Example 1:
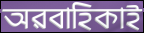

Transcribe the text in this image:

অৱবাহিকাই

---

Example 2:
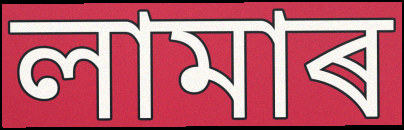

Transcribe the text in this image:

লামাৰ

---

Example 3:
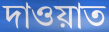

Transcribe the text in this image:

দাওয়াত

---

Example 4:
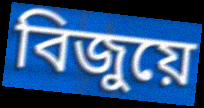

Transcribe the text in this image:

বিজুয়ে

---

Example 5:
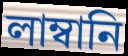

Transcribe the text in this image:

লাম্বানি